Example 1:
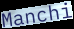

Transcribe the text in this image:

Manchi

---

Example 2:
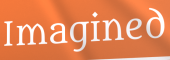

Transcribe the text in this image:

Imagined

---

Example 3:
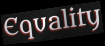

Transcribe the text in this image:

Equality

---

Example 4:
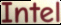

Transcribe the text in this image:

Intel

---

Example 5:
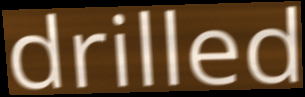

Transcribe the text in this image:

drilled